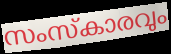
സംസ്‌കാരവും